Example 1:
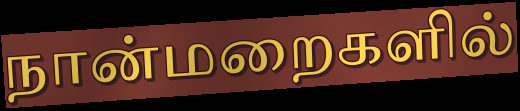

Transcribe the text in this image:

நான்மறைகளில்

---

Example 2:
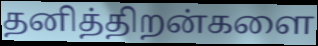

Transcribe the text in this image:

தனித்திறன்களை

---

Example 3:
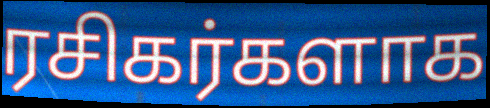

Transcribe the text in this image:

ரசிகர்களாக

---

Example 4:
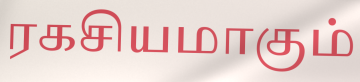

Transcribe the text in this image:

ரகசியமாகும்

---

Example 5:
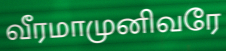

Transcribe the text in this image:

வீரமாமுனிவரே